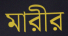
মারীর